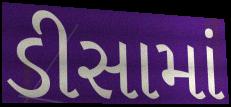
ડીસામાં